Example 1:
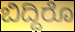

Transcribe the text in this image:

ಬಿದ್ದಿರೊ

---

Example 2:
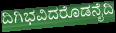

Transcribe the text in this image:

ದಿಗಿಭವಿದರೊಡನೈದಿ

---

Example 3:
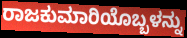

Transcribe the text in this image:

ರಾಜಕುಮಾರಿಯೊಬ್ಬಳನ್ನು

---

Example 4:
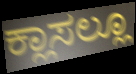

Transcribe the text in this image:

ಕ್ಲಾಸಲ್ಲೂ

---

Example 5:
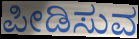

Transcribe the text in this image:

ಪೀಡಿಸುವ